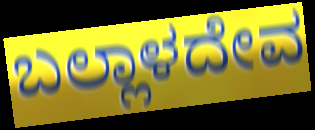
ಬಲ್ಲಾಳದೇವ